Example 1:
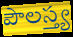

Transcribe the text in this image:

పౌలస్త్య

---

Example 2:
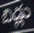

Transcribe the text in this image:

బిడ్లు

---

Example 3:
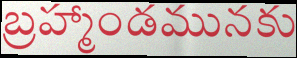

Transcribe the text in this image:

బ్రహ్మాండమునకు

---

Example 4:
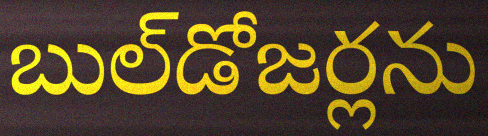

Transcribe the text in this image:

బుల్‌డోజర్లను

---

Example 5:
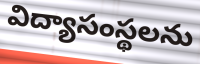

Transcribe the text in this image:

విద్యాసంస్థలను